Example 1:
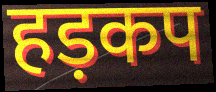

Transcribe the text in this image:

हड़कप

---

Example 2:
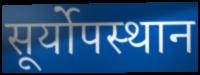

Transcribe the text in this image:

सूर्योपस्थान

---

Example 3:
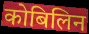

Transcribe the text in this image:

कोबिलिन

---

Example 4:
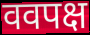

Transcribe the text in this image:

ववपक्ष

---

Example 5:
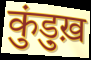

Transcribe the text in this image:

कुंड़ुख़